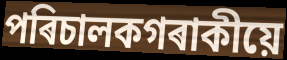
পৰিচালকগৰাকীয়ে